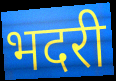
भदरी